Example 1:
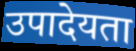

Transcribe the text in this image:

उपादेयता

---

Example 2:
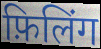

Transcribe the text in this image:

फ़िलिंग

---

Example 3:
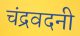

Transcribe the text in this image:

चंद्रवदनी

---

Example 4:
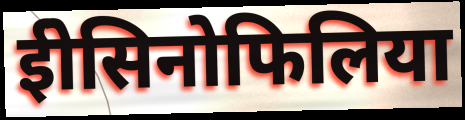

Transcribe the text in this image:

ईोसिनोफिलिया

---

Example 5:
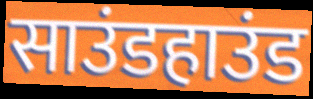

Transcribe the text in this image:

साउंडहाउंड